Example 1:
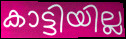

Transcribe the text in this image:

കാട്ടിയില്ല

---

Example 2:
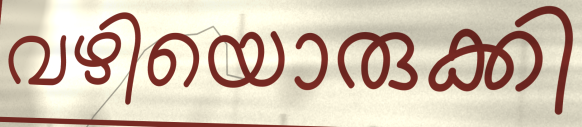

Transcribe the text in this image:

വഴിയൊരുക്കി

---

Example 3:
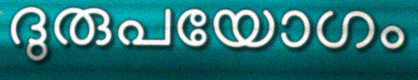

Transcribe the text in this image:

ദുരുപയോഗം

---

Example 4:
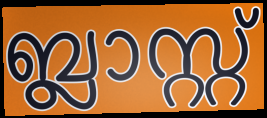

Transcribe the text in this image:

ബ്ലാസ്റ്റ്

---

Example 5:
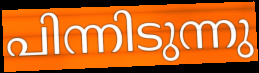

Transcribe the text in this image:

പിന്നിടുന്നു